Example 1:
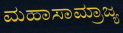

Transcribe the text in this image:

ಮಹಾಸಾಮ್ರಾಜ್ಯ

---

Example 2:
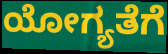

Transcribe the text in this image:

ಯೋಗ್ಯತೆಗೆ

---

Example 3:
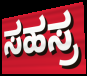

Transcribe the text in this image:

ಸಹಸ್ರ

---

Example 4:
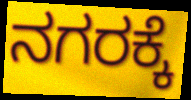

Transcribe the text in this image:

ನಗರಕ್ಕೆ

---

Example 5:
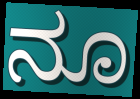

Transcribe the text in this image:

ನೂ